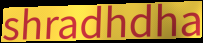
shradhdha